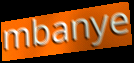
mbanye